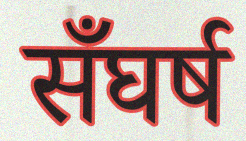
सँघर्ष